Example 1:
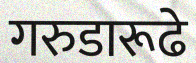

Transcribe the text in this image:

गरुडारूढे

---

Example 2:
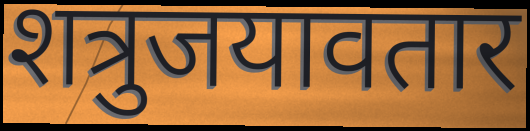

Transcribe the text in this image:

शत्रुजयावतार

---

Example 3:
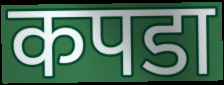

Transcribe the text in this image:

कपडा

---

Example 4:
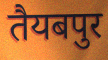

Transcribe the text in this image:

तैयबपुर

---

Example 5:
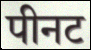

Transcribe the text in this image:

पीनट